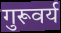
गुरूवर्य